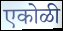
एकोळी